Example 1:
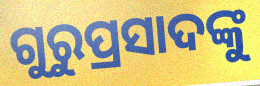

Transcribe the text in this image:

ଗୁରୁପ୍ରସାଦଙ୍କୁ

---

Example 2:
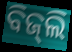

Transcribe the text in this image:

ବିଜ୍‍ଲି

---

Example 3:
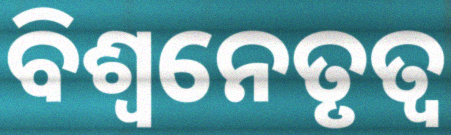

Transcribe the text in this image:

ବିଶ୍ୱନେତୃତ୍ୱ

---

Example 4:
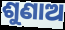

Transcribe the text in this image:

ଶୁଣାଅ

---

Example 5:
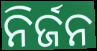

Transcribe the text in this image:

ନିର୍ଜନ